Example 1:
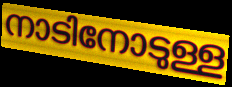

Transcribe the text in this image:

നാടിനോടുള്ള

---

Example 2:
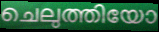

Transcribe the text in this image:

ചെലുത്തിയോ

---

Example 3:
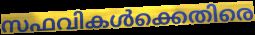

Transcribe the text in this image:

സഫവികൾക്കെതിരെ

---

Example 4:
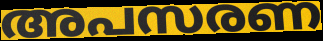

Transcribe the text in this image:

അപസരണ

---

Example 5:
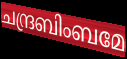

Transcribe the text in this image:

ചന്ദ്രബിംബമേ